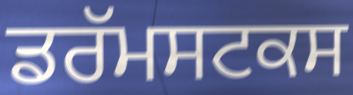
ਡਰੱਮਸਟਕਸ